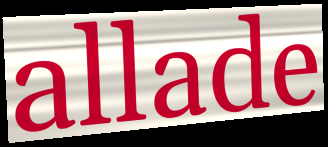
allade